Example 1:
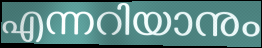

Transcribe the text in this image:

എന്നറിയാനും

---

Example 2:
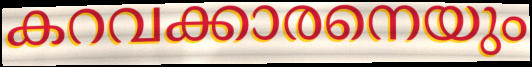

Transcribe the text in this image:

കറവക്കാരനെയും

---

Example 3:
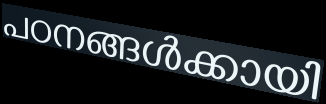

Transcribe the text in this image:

പഠനങ്ങൾക്കായി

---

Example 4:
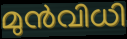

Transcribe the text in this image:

മുൻവിധി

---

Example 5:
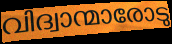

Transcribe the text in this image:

വിദ്വാന്മാരോടു